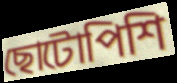
ছোটোপিশি